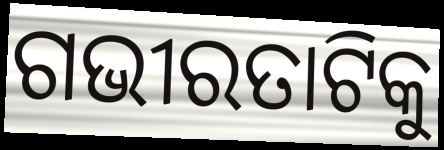
ଗଭୀରତାଟିକୁ